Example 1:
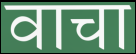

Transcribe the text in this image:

वाचा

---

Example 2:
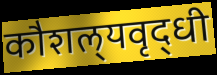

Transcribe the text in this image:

कौशल्यवृद्धी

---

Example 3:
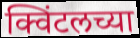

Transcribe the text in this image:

क्विंटलच्या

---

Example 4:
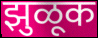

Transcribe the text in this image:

झुळूक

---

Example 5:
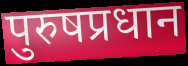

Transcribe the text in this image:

पुरुषप्रधान